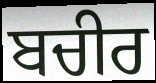
ਬਚੀਰ